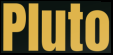
Pluto